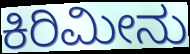
ಕಿರಿಮೀನು